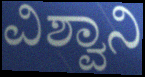
ವಿಶ್ವಾನಿ